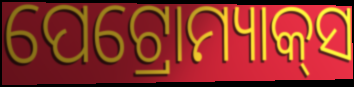
ପେଟ୍ରୋମ୍ୟାକ୍‌ସ